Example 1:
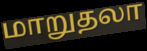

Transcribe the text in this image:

மாறுதலா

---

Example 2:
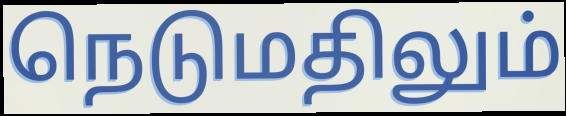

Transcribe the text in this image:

நெடுமதிலும்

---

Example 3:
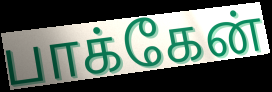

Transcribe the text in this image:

பாக்கேன்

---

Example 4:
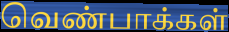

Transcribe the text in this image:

வெண்பாக்கள்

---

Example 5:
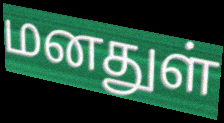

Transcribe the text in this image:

மனதுள்